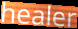
healer